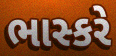
ભાસ્કરે